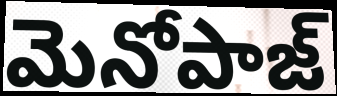
మెనోపాజ్